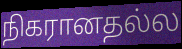
நிகரானதல்ல